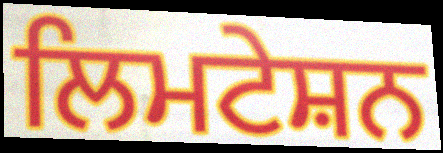
ਲਿਮਟੇਸ਼ਨ